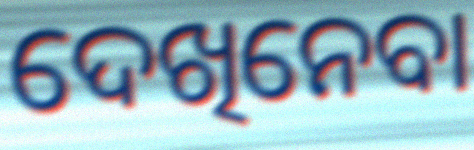
ଦେଖିନେବା